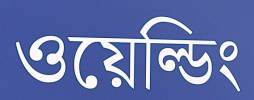
ওয়েল্ডিং